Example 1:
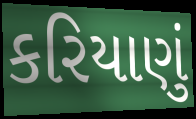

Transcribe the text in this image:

કરિયાણું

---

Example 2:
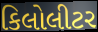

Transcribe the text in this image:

કિલોલીટર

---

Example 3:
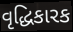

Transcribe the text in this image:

વૃદ્ધિકારક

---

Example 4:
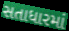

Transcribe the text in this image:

સતાધારમાં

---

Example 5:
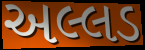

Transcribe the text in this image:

અલ્લડ